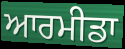
ਆਰਮੀਡਾ